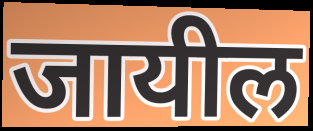
जायील